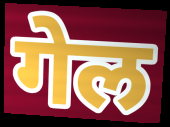
गेल